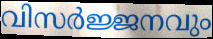
വിസർജ്ജനവും